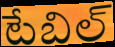
టేబిల్